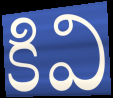
కివి